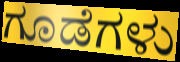
ಗೂಡೆಗಳು